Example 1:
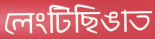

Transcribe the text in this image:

লেংটিছিঙাত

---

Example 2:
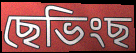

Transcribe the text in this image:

ছেভিংছ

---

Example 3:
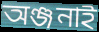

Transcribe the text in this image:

অঞ্জনাই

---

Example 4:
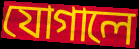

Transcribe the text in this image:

যোগালে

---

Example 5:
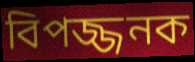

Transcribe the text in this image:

বিপজ্জনক